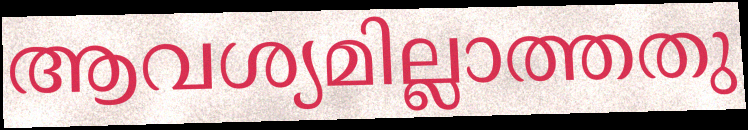
ആവശ്യമില്ലാത്തതു